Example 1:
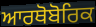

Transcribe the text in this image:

ਆਰਥੋਬੋਰਿਕ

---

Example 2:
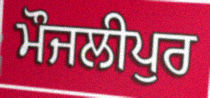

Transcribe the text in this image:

ਮੌਜਲੀਪੁਰ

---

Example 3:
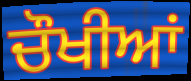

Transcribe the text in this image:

ਚੌਖੀਆਂ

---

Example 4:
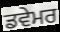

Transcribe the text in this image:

ਡਵੇਮਰ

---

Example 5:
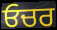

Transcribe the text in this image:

ਓਚਰ